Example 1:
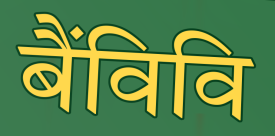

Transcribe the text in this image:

बैंविवि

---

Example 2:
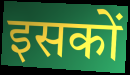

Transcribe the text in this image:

इसकों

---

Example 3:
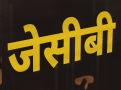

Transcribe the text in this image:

जेसीबी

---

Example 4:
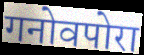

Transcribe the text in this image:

गनोवपोरा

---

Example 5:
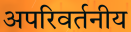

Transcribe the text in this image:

अपरिवर्तनीय